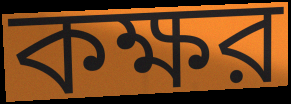
কক্ষর